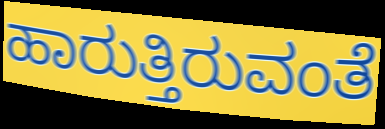
ಹಾರುತ್ತಿರುವಂತೆ